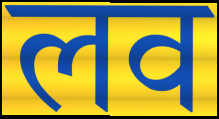
लव